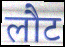
लौट